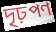
দৃঢ়পণ